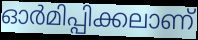
ഓർമിപ്പിക്കലാണ്